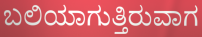
ಬಲಿಯಾಗುತ್ತಿರುವಾಗ